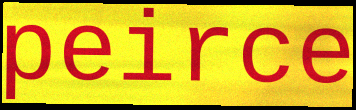
peirce